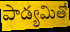
పాడ్యమితో